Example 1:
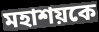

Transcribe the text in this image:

মহাশয়কে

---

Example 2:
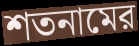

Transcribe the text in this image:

শতনামের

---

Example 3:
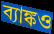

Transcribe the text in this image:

ব্যাঙ্কও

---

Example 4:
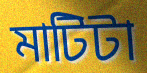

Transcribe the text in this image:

মাটিটা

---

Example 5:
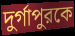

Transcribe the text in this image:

দুর্গাপুরকে